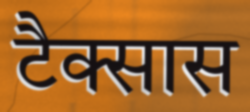
टैक्सास